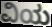
ವಿಯ